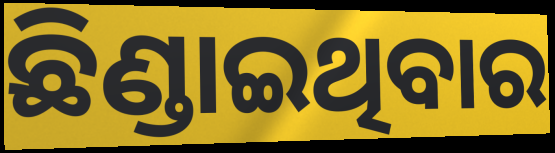
ଛିଣ୍ଡାଇଥିବାର